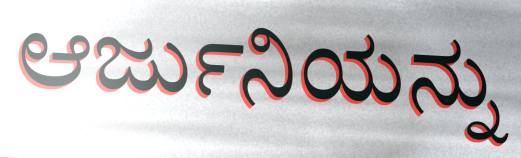
ಆರ್ಜುನಿಯನ್ನು